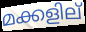
മക്കളില്